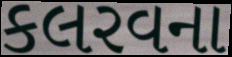
કલરવના